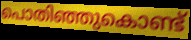
പൊതിഞ്ഞുകൊണ്ട്